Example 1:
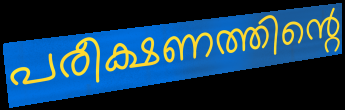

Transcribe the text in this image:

പരീക്ഷണത്തിന്റെ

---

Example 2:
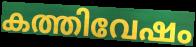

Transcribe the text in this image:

കത്തിവേഷം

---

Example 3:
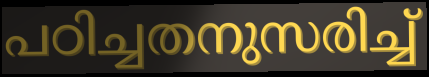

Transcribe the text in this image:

പഠിച്ചതനുസരിച്ച്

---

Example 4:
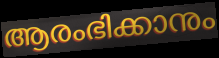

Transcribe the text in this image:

ആരംഭിക്കാനും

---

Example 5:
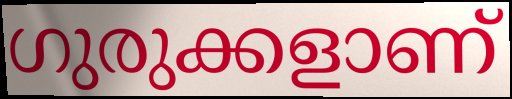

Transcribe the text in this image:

ഗുരുക്കളാണ്